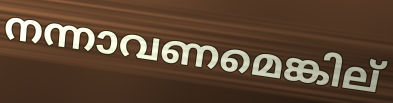
നന്നാവണമെങ്കില്